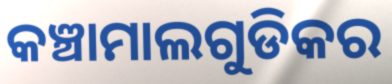
କଞ୍ଚାମାଲଗୁଡିକର